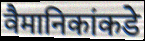
वैमानिकांकडे